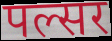
पल्सर